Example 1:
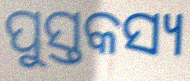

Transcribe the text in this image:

ପୁସ୍ତକସ୍ୟ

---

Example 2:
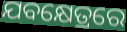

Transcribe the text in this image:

ଯବକ୍ଷେତ୍ରରେ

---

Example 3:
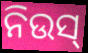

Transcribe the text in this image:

ନିଉସ୍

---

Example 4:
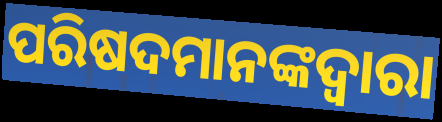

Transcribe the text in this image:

ପରିଷଦମାନଙ୍କଦ୍ୱାରା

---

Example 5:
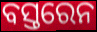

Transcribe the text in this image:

ବସ୍ତରେନ